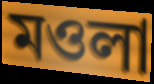
মওলা